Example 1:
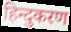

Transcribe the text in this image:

हिन्दुकरण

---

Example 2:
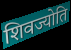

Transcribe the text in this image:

शिवज्योति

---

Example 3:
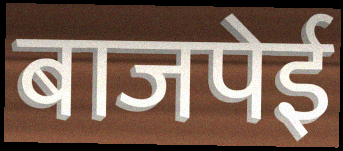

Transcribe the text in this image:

बाजपेई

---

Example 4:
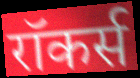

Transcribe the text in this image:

रॉकर्स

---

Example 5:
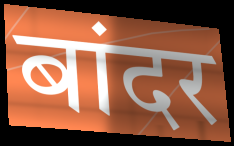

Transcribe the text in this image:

बांदर